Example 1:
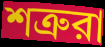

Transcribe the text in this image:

শত্রুরা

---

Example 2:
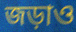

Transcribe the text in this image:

জড়াও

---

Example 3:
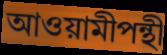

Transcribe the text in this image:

আওয়ামীপন্থী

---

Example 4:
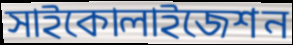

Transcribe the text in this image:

সাইকোলাইজেশন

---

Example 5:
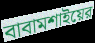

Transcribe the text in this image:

বাবামশাইয়ের